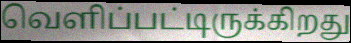
வெளிப்பட்டிருக்கிறது